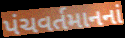
પંચવર્તમાનનાં